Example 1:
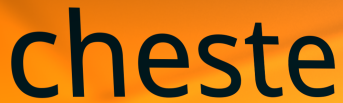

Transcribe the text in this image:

cheste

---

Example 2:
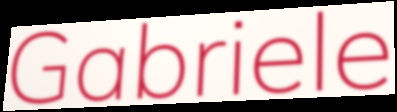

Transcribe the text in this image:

Gabriele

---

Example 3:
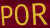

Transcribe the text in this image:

POR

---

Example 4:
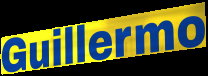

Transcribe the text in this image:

Guillermo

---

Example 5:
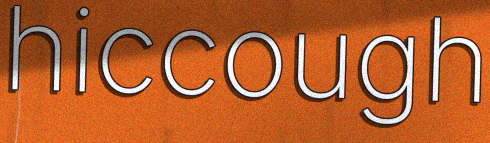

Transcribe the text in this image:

hiccough